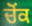
ਚੋਂਕ